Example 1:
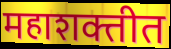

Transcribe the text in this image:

महाशक्तीत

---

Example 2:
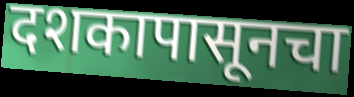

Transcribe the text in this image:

दशकापासूनचा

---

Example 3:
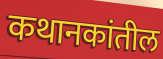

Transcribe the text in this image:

कथानकांतील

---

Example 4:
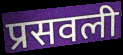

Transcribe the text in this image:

प्रसवली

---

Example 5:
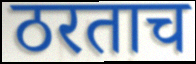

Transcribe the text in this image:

ठरताच